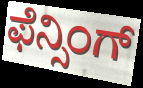
ಫೆನ್ಸಿಂಗ್